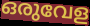
ഒരുവേള